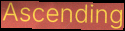
Ascending